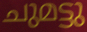
ചുമട്ടു